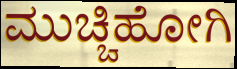
ಮುಚ್ಚಿಹೋಗಿ